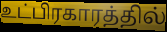
உட்பிரகாரத்தில்